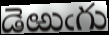
డెఱుఁగు